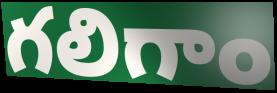
గలిగాం